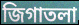
জিগাতলা